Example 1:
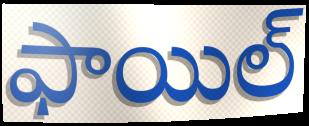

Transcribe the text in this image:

ఫాయిల్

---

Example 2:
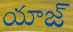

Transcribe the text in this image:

యాజ్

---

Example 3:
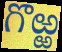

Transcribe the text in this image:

గొఱ్ఱ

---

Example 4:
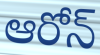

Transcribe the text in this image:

ఆరోన్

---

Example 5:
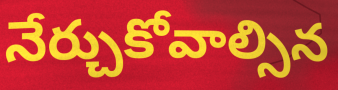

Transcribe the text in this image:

నేర్చుకోవాల్సిన